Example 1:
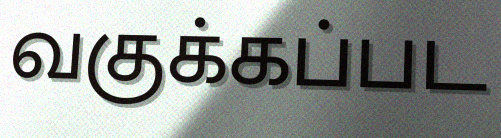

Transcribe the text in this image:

வகுக்கப்பட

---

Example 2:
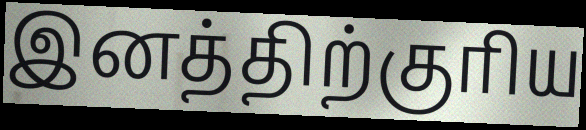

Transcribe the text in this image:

இனத்திற்குரிய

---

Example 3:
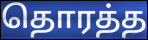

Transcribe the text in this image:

தொரத்த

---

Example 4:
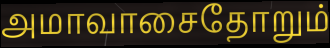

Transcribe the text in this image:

அமாவாசைதோறும்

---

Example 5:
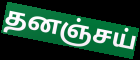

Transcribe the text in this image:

தனஞ்சய்